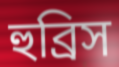
হুব্রিস